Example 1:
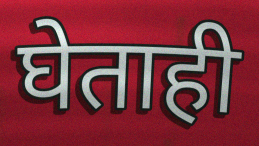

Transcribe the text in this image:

घेताही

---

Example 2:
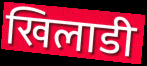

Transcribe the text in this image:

खिलाडी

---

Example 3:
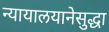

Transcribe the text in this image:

न्यायालयानेसुद्धा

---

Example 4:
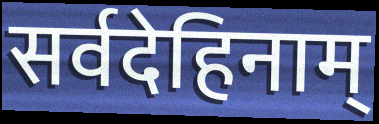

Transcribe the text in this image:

सर्वदेहिनाम्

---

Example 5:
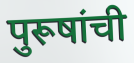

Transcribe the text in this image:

पुरूषांची